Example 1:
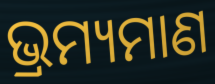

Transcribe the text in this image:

ଭ୍ରମ୍ୟମାଣ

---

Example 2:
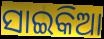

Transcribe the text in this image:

ସାଇକିଆ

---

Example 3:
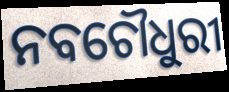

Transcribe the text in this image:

ନବଚୌଧୁରୀ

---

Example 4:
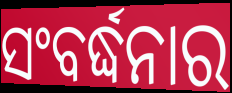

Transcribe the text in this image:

ସଂବର୍ଦ୍ଧନାର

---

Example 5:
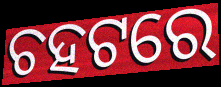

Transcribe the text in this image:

ଚହଟରେ